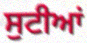
ਸੁਟੀਆਂ